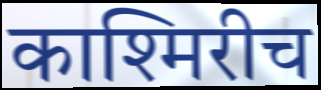
काश्मिरीच